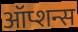
ऑप्शन्स